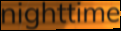
nighttime